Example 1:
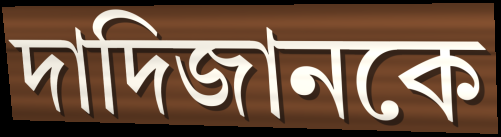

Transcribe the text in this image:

দাদিজানকে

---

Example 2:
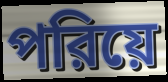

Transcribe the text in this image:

পরিয়ে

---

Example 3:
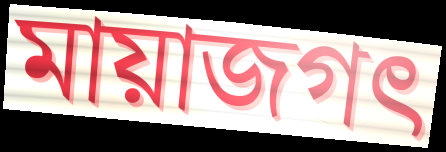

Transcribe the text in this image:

মায়াজগৎ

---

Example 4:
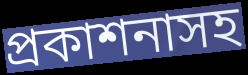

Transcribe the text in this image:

প্রকাশনাসহ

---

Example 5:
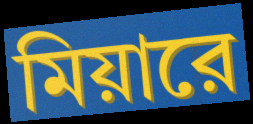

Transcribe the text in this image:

মিয়ারে